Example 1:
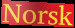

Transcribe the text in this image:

Norsk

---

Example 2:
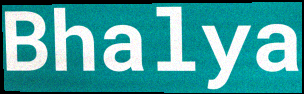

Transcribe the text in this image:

Bhalya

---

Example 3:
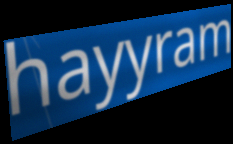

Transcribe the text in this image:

hayyram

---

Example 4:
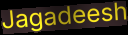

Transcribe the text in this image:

Jagadeesh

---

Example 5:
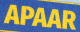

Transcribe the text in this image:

APAAR